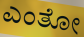
ಎಂತೋ